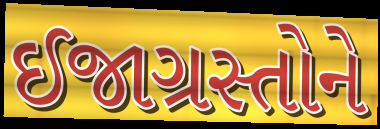
ઈજાગ્રસ્તોને